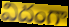
విదంగా